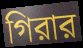
গিরার